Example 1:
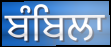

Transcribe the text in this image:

ਬੰਬਿਲਾ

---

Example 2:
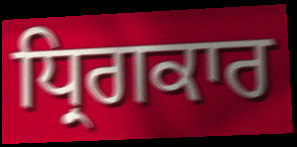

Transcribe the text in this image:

ਧ੍ਰਿਗਕਾਰ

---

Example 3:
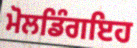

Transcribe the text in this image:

ਮੋਲਡਿੰਗਇਹ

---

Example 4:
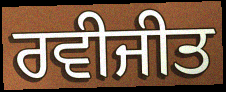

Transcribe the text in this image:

ਰਵੀਜੀਤ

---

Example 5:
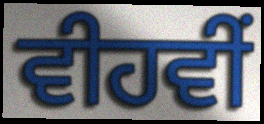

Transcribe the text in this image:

ਵੀਹਵੀਂ